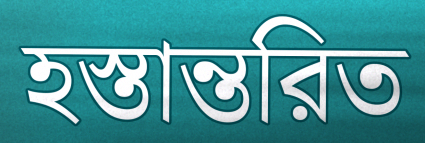
হস্তান্তরিত